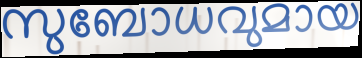
സുബോധവുമായ